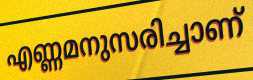
എണ്ണമനുസരിച്ചാണ്